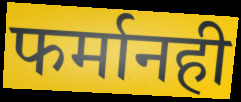
फर्मानही